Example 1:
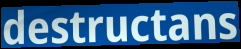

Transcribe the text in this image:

destructans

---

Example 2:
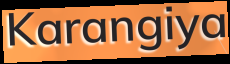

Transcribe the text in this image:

Karangiya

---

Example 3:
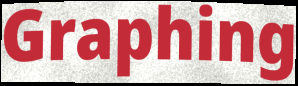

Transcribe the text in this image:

Graphing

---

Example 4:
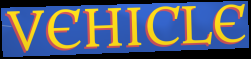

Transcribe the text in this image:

VEHICLE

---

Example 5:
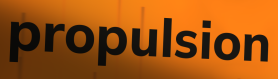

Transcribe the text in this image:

propulsion